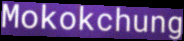
Mokokchung